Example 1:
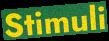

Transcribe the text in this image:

Stimuli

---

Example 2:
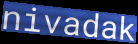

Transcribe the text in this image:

nivadak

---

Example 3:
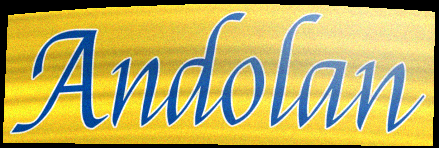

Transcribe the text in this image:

Andolan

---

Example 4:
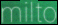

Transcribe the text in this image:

milto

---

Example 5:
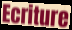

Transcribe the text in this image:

Ecriture